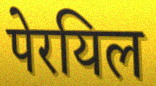
पेरयिल